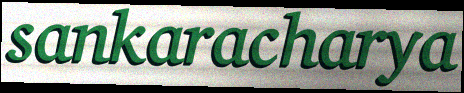
sankaracharya